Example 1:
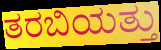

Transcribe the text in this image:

ತರಬಿಯತ್ತು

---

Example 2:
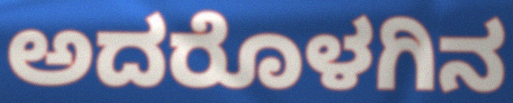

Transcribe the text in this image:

ಅದರೊಳಗಿನ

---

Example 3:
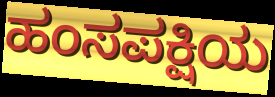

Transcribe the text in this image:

ಹಂಸಪಕ್ಷಿಯ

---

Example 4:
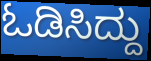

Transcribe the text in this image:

ಓಡಿಸಿದ್ದು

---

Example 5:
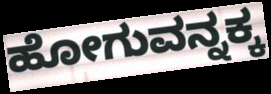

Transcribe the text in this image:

ಹೋಗುವನ್ನಕ್ಕ